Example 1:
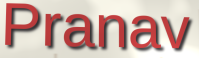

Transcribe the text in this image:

Pranav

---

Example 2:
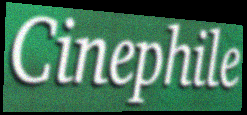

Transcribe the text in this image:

Cinephile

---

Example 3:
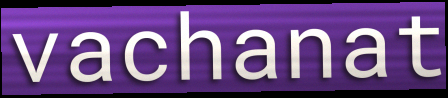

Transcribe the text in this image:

vachanat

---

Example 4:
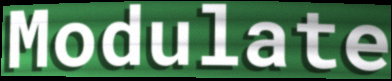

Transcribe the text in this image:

Modulate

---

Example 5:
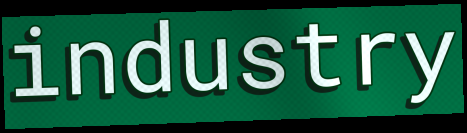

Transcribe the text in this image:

industry